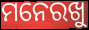
ମନେରଖୁ